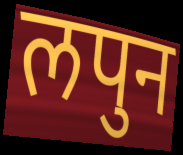
लपुन